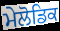
ਮੇਲੋਡਿਕ